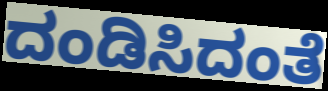
ದಂಡಿಸಿದಂತೆ